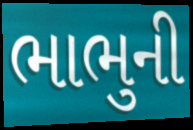
ભાભુની